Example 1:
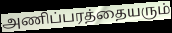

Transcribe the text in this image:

அணிப்பரத்தையரும்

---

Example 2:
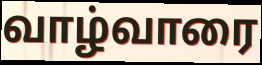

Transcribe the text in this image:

வாழ்வாரை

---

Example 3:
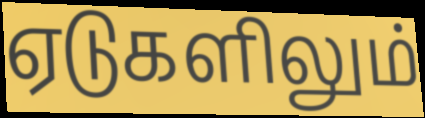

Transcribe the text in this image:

ஏடுகளிலும்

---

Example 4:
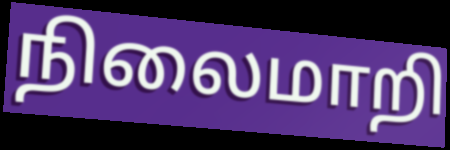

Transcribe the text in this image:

நிலைமாறி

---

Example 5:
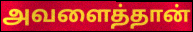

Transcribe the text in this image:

அவளைத்தான்